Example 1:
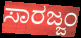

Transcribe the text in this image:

ಸಾರಜ್ಜಂ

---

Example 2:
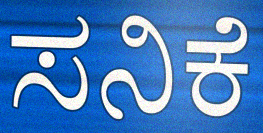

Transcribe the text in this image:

ಸನಿಕೆ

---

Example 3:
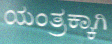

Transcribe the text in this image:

ಯಂತ್ರಕ್ಕಾಗಿ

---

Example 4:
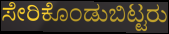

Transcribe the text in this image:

ಸೇರಿಕೊಂಡುಬಿಟ್ಟರು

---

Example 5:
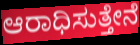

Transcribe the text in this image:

ಆರಾಧಿಸುತ್ತೇನೆ